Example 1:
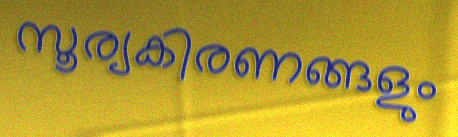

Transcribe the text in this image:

സൂര്യകിരണങ്ങളും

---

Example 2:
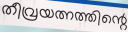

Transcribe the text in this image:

തീവ്രയത്നത്തിന്റെ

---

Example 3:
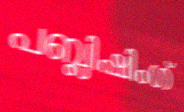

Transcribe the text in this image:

പബ്ലിഷിംഗ്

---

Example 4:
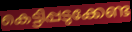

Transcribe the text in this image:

കെട്ടിപ്പടുക്കേണ്ട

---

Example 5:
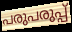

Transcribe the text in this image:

പരുപരുപ്പ്